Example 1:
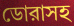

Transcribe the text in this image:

ডোরাসহ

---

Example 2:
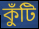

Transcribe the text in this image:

কুঁটি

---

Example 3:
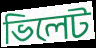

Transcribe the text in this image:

ভিলেট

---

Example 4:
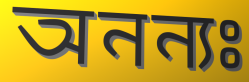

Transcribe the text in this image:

অনন্যঃ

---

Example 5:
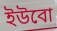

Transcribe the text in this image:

ইউবো